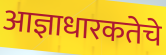
आज्ञाधारकतेचे